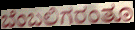
ಬೆಂಬಲಿಗರಂತೂ